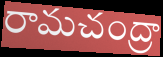
రామచంద్రా